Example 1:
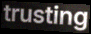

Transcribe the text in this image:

trusting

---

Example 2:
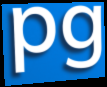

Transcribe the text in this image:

pg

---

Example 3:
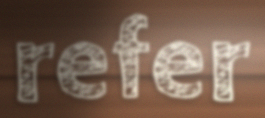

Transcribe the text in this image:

refer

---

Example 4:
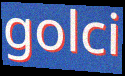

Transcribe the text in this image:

golci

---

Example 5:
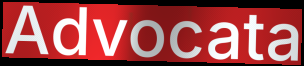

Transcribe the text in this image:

Advocata